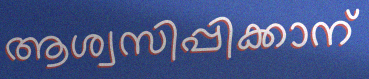
ആശ്വസിപ്പിക്കാന്